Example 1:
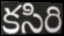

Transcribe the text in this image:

కసిరి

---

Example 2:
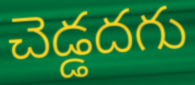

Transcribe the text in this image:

చెడ్డదగు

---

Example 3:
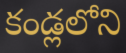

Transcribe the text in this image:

కండ్లలోని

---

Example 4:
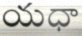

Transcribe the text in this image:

యధా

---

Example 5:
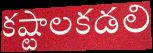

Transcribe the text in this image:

కష్టాలకడలి